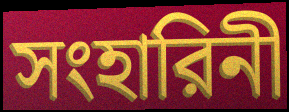
সংহারিনী